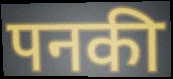
पनकी